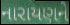
નારાયણને